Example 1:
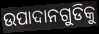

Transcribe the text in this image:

ଉପାଦାନଗୁଡିକୁ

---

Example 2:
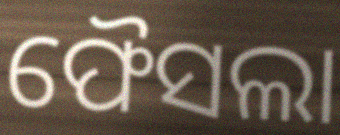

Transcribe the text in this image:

ଫୈସଲା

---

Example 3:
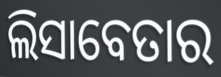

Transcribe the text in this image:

ଲିସାବେତାର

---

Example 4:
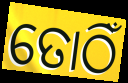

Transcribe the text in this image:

ତୋଠିଁ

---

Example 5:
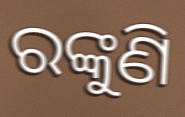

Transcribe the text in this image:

ରଙ୍କୁଣି